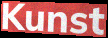
Kunst